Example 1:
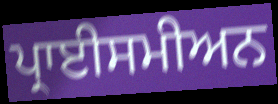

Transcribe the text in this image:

ਪ੍ਰਾਈਸਮੀਅਨ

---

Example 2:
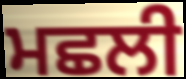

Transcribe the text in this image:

ਮਛਲੀ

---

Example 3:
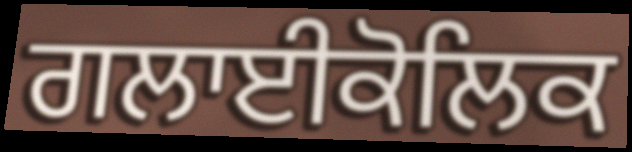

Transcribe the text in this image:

ਗਲਾਈਕੋਲਿਕ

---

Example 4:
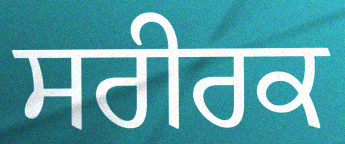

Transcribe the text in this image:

ਸਰੀਰਕ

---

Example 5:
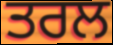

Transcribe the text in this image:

ਤਰਲ